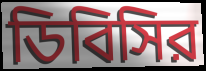
ডিবিসির